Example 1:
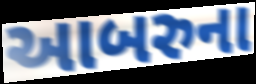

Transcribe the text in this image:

આબરુના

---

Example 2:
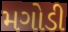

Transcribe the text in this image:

મગોડી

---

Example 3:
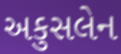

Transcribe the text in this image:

અકુસલેન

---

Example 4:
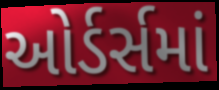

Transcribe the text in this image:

ઓર્ડર્સમાં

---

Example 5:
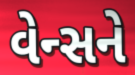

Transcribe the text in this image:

વેન્સને